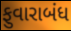
ફુવારાબંધ